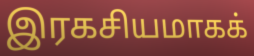
இரகசியமாகக்